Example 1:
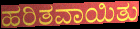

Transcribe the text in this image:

ಹರಿತವಾಯಿತು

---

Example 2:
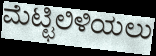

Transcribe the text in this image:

ಮೆಟ್ಟಿಲಿಳಿಯಲು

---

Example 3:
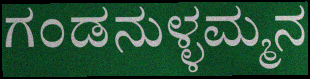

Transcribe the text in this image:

ಗಂಡನುಳ್ಳಮ್ಮನ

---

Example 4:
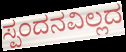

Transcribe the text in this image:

ಸ್ಪಂದನವಿಲ್ಲದ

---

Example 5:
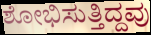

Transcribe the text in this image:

ಶೋಭಿಸುತ್ತಿದ್ದವು